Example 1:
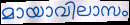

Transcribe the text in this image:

മായാവിലാസം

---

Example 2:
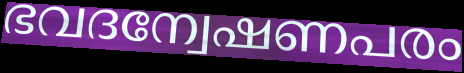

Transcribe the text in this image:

ഭവദന്വേഷണപരം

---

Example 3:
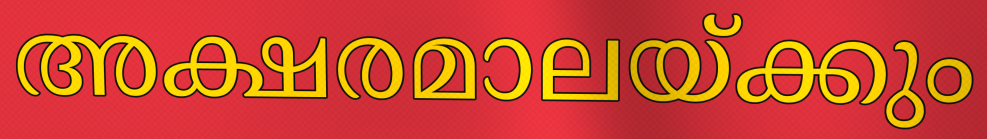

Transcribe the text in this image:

അക്ഷരമാലയ്ക്കും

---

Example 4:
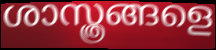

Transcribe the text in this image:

ശാസ്ത്രങ്ങളെ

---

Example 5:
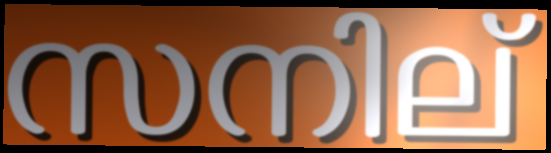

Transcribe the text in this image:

സനില്